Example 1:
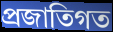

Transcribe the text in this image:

প্রজাতিগত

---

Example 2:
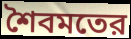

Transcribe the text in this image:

শৈবমতের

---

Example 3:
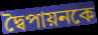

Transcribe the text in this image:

দ্বৈপায়নকে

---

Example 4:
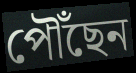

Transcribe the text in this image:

পৌঁছেন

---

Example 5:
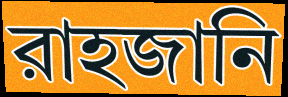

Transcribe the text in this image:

রাহজানি